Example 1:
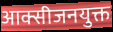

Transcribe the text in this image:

आक्सीजनयुक्त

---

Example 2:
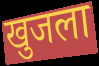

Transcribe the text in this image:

खुजला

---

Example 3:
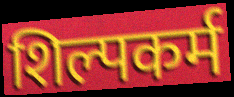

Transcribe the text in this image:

शिल्पकर्म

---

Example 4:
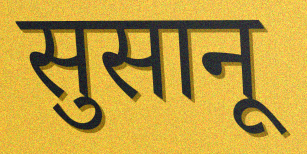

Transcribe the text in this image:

सुसानू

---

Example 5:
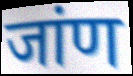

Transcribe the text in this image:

जांण